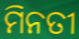
ମିନତୀ